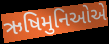
ઋષિમુનિઓએ